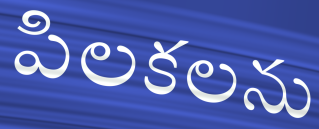
పిలకలను